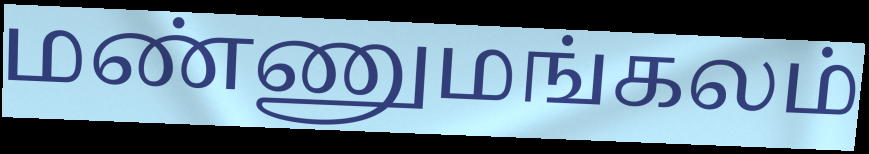
மண்ணுமங்கலம்